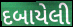
દબાયેલી